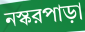
নস্করপাড়া